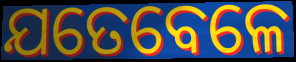
ଯତେବେଳେ